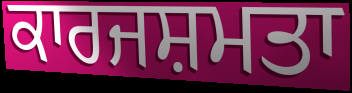
ਕਾਰਜਸ਼ਮਤਾ